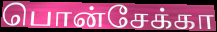
பொன்சேக்கா